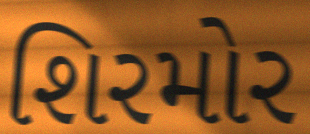
શિરમોર